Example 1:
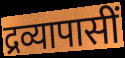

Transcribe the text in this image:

द्रव्यापासीं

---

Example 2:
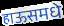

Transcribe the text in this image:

हाऊसमधे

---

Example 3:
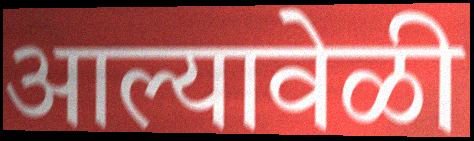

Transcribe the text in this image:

आल्यावेळी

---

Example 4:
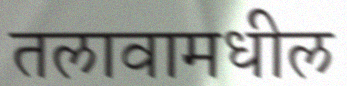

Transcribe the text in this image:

तलावामधील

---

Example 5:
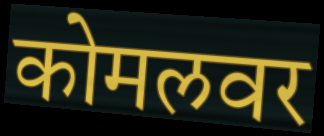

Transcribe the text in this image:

कोमलवर